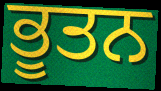
ਭੂਤਨ